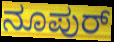
ನೂಪುರ್